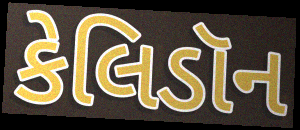
કેલિડૉન